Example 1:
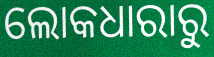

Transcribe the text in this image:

ଲୋକଧାରାରୁ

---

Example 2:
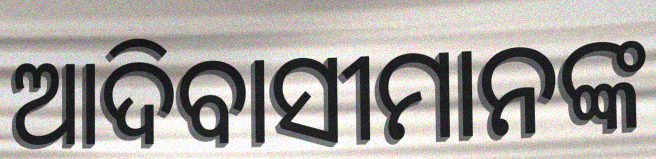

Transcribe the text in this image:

ଆଦିବାସୀମାନଙ୍କ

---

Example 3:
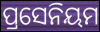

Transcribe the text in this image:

ପ୍ରସେନିୟମ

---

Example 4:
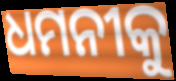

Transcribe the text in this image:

ଧମନୀକୁ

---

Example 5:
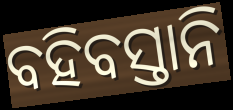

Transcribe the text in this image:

ବହିବସ୍ତାନି